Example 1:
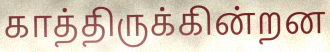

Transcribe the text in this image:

காத்திருக்கின்றன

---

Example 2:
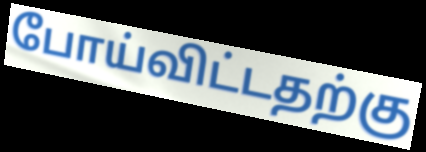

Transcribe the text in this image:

போய்விட்டதற்கு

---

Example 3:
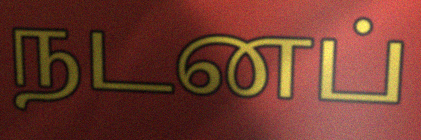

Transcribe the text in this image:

நடனப்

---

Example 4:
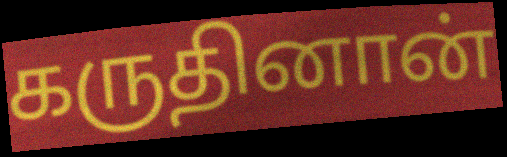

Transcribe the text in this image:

கருதினான்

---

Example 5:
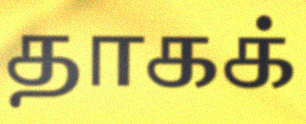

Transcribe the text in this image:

தாகக்